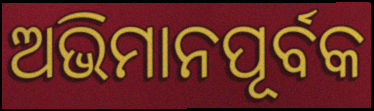
ଅଭିମାନପୂର୍ବକ